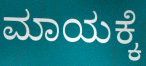
ಮಾಯಕ್ಕೆ